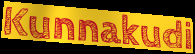
Kunnakudi